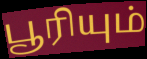
பூரியும்